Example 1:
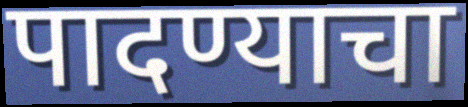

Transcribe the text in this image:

पादण्याचा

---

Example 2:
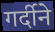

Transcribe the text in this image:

गर्दीने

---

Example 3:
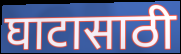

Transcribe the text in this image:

घाटासाठी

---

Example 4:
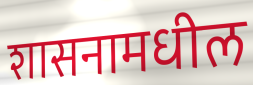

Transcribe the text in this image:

शासनामधील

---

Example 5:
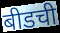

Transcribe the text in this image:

बीडची